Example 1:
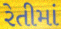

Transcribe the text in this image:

રેતીમાં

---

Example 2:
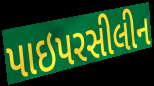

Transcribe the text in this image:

પાઇપરસીલીન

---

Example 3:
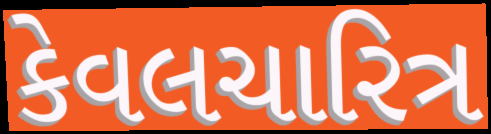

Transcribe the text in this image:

કેવલચારિત્ર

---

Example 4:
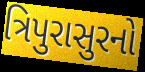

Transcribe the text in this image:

ત્રિપુરાસુરનો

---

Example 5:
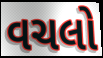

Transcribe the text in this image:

વચલો